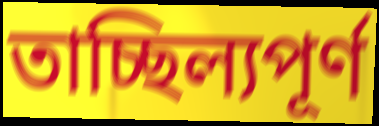
তাচ্ছিল্যপূর্ণ